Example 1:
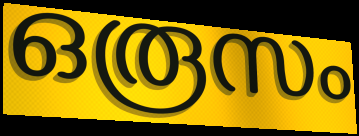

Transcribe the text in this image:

ഒരൂസം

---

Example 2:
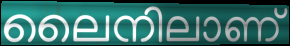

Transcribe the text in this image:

ലൈനിലാണ്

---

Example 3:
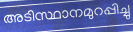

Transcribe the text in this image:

അടിസ്ഥാനമുറപ്പിച്ചു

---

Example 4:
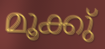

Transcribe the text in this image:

മൂക്കു്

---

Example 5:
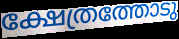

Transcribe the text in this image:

ക്ഷേത്രത്തോടു